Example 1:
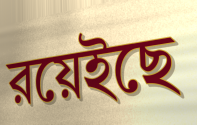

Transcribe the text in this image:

রয়েইছে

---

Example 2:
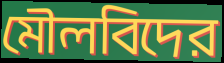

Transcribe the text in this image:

মৌলবিদের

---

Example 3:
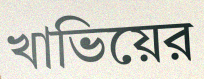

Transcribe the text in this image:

খাভিয়ের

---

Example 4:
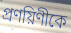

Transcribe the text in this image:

প্রণয়িণীকে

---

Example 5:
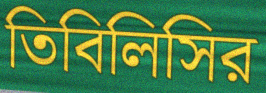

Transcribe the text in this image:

তিবিলিসির